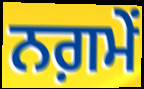
ਨਗ਼ਮੇਂ